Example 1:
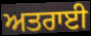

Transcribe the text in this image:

ਅਤਰਾਈ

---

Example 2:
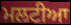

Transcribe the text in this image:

ਮਲਟੀਆ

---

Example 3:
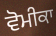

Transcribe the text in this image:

ਵੋਮੀਕਾ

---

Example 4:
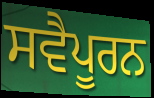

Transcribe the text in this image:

ਸਵੈਪੂਰਨ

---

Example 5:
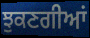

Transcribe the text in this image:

ਝੁਕਣਗੀਆਂ